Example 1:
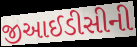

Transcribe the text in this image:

જીઆઈડીસીની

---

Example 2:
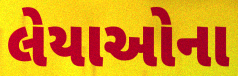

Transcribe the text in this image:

લેયાઓના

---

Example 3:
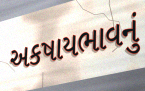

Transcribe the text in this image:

અકષાયભાવનું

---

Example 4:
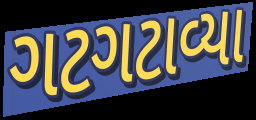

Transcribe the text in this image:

ગટગટાવ્યા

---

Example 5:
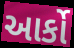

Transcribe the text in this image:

આર્કો